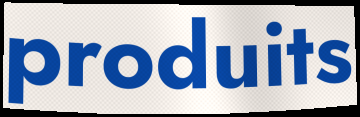
produits